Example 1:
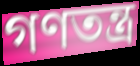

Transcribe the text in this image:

গণতন্ত্র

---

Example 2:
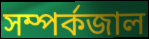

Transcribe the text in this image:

সম্পর্কজাল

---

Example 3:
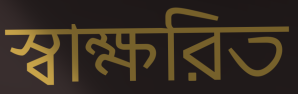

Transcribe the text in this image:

স্বাক্ষরিত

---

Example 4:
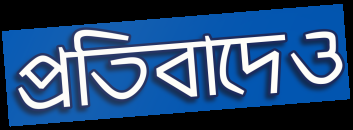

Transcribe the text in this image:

প্রতিবাদেও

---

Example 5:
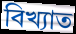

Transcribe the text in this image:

বিখ্যাত